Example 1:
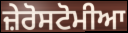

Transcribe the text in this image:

ਜ਼ੇਰੋਸਟੋਮੀਆ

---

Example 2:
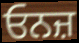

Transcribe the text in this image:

ਓਨਜ਼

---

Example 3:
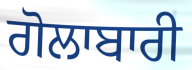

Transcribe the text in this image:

ਗੋਲਾਬਾਰੀ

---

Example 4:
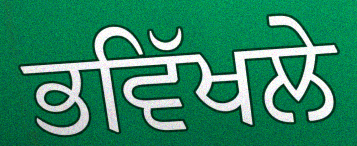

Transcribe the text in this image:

ਭਵਿੱਖਲੇ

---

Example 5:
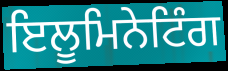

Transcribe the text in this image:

ਇਲੂਮਿਨੇਟਿੰਗ